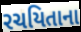
રચયિતાના